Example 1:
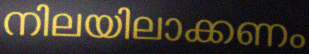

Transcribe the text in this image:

നിലയിലാക്കണം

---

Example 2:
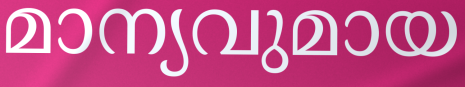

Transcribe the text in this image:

മാന്യവുമായ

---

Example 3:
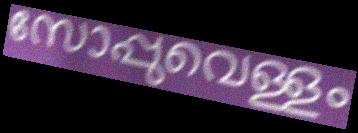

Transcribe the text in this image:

സോപ്പുവെള്ളം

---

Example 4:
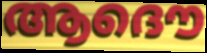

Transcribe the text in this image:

ആദൌ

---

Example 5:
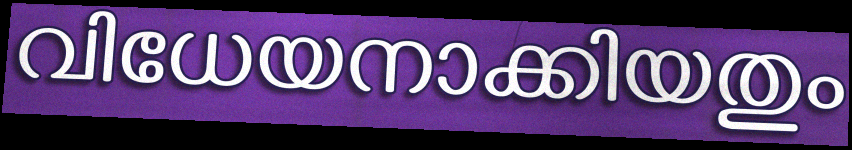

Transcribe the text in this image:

വിധേയനാക്കിയതും